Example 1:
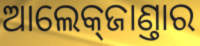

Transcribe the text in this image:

ଆଲେକ୍‌ଜାଣ୍ତାର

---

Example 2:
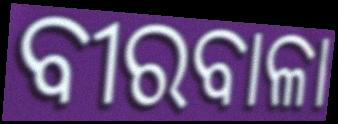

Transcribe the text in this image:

ବୀରବାଳା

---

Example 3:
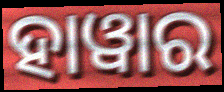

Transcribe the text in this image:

ହାୱାର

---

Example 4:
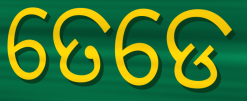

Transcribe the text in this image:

ତେଡେ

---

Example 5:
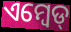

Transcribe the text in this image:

ଏମ୍ବେଡ୍